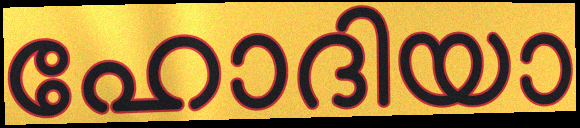
ഹോദിയാ